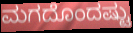
ಮಗದೊಂದಷ್ಟು